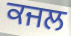
ਕਜਲ